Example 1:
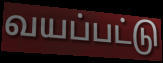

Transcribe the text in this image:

வயப்பட்டு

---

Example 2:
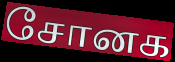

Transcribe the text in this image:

சோனக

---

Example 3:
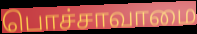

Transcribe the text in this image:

பொச்சாவாமை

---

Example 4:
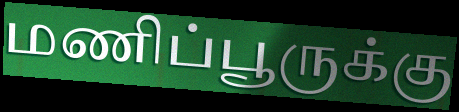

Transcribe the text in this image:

மணிப்பூருக்கு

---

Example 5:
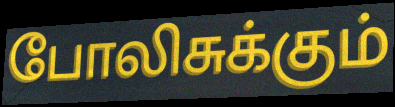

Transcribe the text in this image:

போலிசுக்கும்